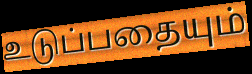
உடுப்பதையும்